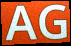
AG